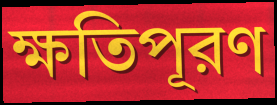
ক্ষতিপূরণ